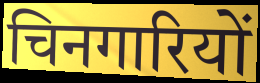
चिनगारियों